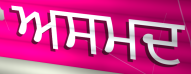
ਅਸਮਦ